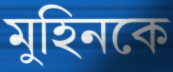
মুহিনকে